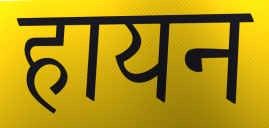
हायन